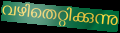
വഴിതെറ്റിക്കുന്നു